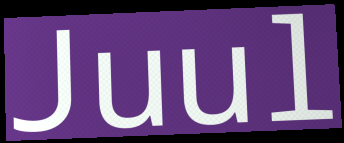
Juul